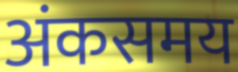
अंकसमय